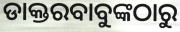
ଡାକ୍ତରବାବୁଙ୍କଠାରୁ